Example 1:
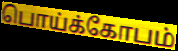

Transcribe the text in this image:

பொய்க்கோபம்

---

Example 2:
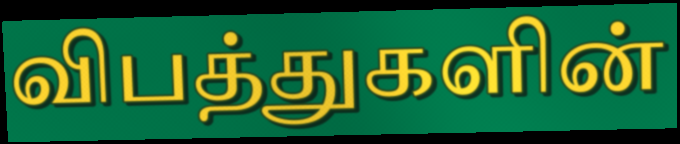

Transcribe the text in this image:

விபத்துகளின்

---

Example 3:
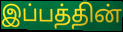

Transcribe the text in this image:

இப்பத்தின்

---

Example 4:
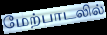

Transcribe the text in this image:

மேற்பாடலில்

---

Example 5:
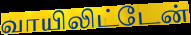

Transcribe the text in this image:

வாயிலிட்டேன்